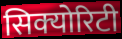
सिक्‍योरिटी